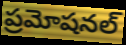
ప్రమోషనల్